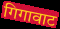
गिगावाट